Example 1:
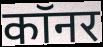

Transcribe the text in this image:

कॉनर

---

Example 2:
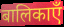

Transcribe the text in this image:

बालिकाएँ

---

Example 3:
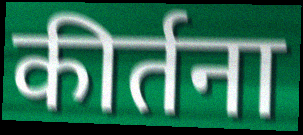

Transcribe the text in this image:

कीर्तना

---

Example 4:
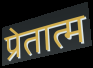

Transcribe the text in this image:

प्रेतात्म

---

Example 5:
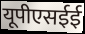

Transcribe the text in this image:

यूपीएसईई